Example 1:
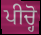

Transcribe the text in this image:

ਪੀਚ੍ਹੋ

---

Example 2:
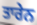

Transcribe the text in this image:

ਤਾਰੇਨ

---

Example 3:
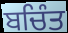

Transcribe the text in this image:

ਬਚਿੰਤ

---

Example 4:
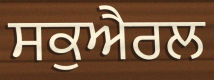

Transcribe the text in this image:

ਸਕੁਐਰਲ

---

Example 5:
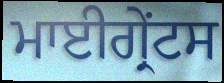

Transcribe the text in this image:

ਮਾਈਗ੍ਰੇਂਟਸ